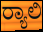
ರ‍್ಯಾಲಿ